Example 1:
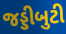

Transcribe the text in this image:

જડ્ડીબુટી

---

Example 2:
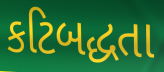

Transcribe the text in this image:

કટિબદ્ધતા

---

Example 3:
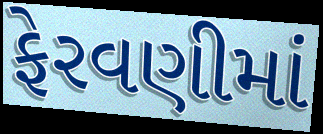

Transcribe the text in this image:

ફેરવણીમાં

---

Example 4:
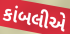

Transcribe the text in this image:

કાંબલીએ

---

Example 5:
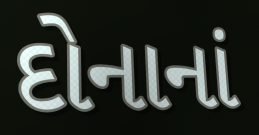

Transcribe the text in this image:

દોનાનાં